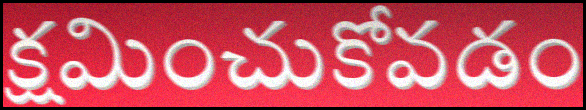
క్షమించుకోవడం